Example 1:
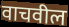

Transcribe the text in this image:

वाचवील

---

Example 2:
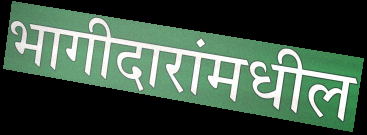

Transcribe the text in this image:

भागीदारांमधील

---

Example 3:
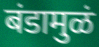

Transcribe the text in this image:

बंडामुळं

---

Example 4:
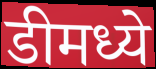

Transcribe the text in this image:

डीमध्ये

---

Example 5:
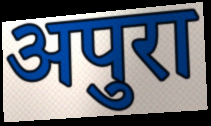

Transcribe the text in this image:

अपुरा